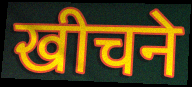
खीचने